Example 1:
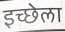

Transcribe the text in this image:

इच्छेला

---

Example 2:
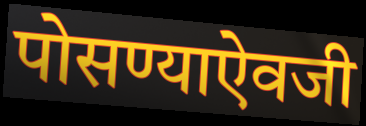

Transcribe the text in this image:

पोसण्याऐवजी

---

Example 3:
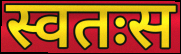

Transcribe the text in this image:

स्वतःस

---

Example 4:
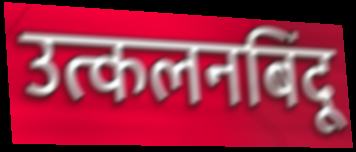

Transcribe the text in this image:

उत्कलनबिंदू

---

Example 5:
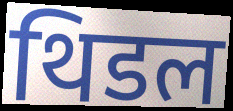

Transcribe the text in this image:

थिडल